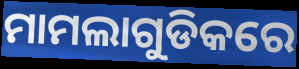
ମାମଲାଗୁଡିକରେ